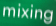
mixing